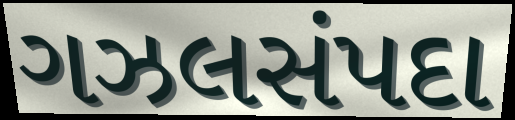
ગઝલસંપદા